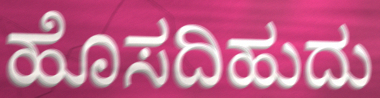
ಹೊಸದಿಹುದು